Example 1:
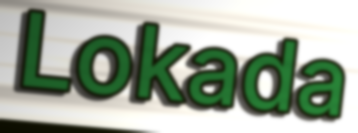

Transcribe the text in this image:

Lokada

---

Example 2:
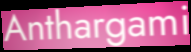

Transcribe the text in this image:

Anthargami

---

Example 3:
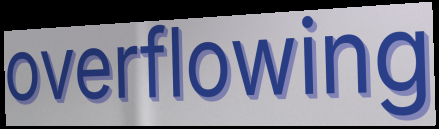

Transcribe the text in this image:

overflowing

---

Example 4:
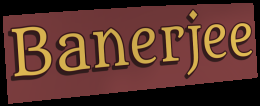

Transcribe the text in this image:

Banerjee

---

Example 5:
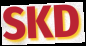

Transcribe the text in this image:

SKD